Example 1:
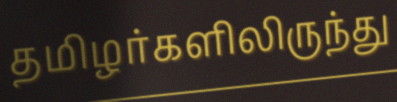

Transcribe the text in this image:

தமிழர்களிலிருந்து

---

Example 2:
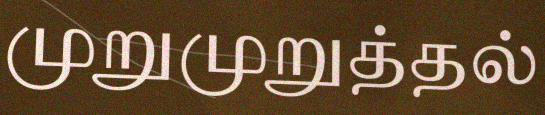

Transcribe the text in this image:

முறுமுறுத்தல்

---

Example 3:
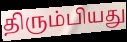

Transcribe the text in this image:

திரும்பியது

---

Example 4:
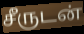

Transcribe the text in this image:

சீருடன்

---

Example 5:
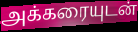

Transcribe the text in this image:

அக்கரையுடன்